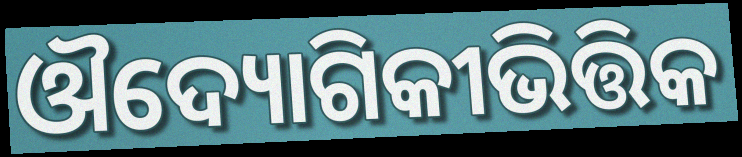
ଔଦ୍ୟୋଗିକୀଭିତ୍ତିକ